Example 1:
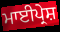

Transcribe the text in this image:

ਮਾਈਪ੍ਰੇਸ਼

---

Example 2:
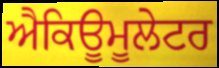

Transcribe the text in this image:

ਐਕਿਊਮੂਲੇਟਰ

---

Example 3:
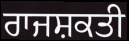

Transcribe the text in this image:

ਰਾਜਸ਼ਕਤੀ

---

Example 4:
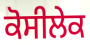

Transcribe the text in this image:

ਕੋਸੀਲੇਕ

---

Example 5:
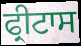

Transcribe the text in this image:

ਫ੍ਰੀਟਾਸ